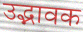
उद्भावक